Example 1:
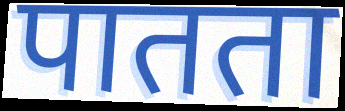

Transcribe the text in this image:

पातता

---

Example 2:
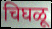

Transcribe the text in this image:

चिघळू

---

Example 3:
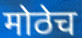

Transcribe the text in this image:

मोठेच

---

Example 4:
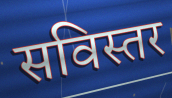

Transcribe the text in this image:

सविस्तर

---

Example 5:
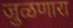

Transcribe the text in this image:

जुळणारा